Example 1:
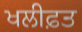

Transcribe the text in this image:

ਖਲੀਫ਼ਤ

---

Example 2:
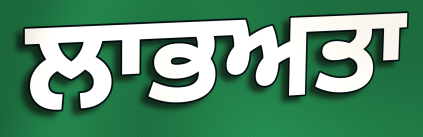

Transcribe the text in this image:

ਲਾਭਅਤਾ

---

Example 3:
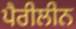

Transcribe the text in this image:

ਪੈਰੀਲੀਨ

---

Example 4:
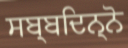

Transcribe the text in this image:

ਸਬ੍ਬਦਿਨ੍ਨੋ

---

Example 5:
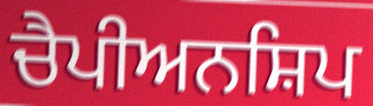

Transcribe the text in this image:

ਚੈਪੀਅਨਸ਼ਿਪ